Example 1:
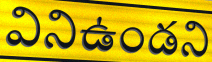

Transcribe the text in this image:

వినిఉండని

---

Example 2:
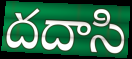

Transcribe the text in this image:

దదాసి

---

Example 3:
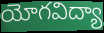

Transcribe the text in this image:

యోగవిద్యా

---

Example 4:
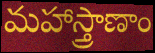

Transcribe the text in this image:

మహాస్త్రాణాం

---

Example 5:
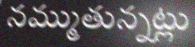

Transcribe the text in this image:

నమ్ముతున్నట్లు